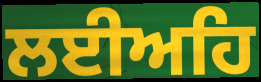
ਲਈਅਹਿ